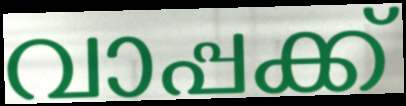
വാപ്പക്ക്